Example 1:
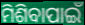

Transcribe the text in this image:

ମିଶିବାପାଇଁ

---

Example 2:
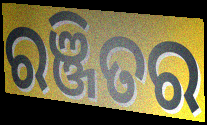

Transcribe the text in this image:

ରଞ୍ଜିତର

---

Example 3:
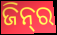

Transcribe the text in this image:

ଜିନ୍‌ର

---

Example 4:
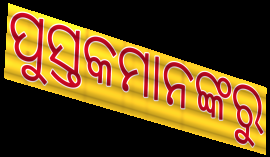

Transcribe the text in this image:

ପୁସ୍ତକମାନଙ୍କରୁ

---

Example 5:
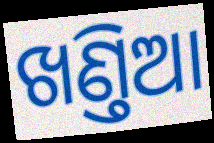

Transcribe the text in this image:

ଖଣ୍ତିଆ